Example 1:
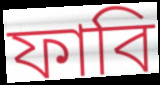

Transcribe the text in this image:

ফাবি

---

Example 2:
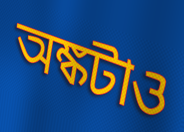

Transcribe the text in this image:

অঙ্কটাও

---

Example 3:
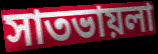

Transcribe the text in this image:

সাতভায়লা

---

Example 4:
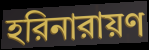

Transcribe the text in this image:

হরিনারায়ণ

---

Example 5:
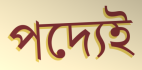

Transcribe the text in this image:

পদ্যেই